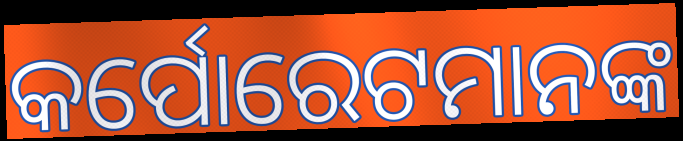
କର୍ପୋରେଟମାନଙ୍କ